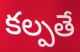
కల్పతే